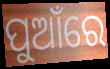
ପୁଆଁରେ